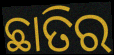
ଛାତିର